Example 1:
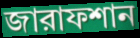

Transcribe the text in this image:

জারাফশান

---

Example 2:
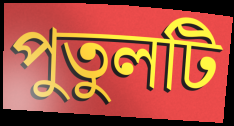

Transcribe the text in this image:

পুতুলটি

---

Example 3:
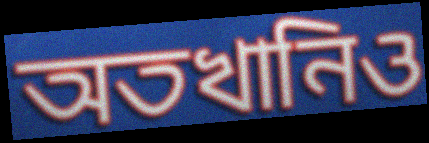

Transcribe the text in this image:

অতখানিও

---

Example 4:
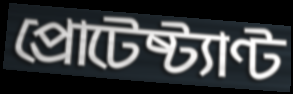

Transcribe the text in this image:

প্রোটেষ্ট্যাণ্ট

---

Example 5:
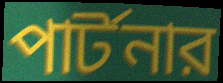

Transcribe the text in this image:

পার্টনার